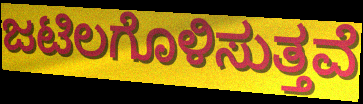
ಜಟಿಲಗೊಳಿಸುತ್ತವೆ